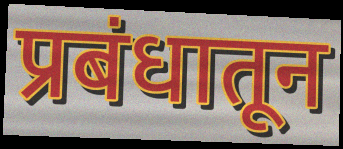
प्रबंधातून